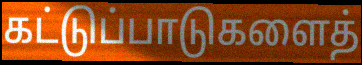
கட்டுப்பாடுகளைத்